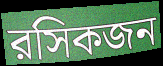
রসিকজন